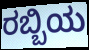
ರಬ್ಬಿಯ